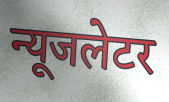
न्यूजलेटर